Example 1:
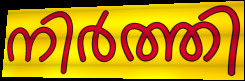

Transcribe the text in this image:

നിർത്തി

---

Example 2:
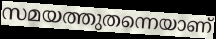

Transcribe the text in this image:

സമയത്തുതന്നെയാണ്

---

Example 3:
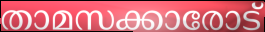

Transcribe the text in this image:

താമസക്കാരോട്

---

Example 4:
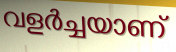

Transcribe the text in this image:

വളർച്ചയാണ്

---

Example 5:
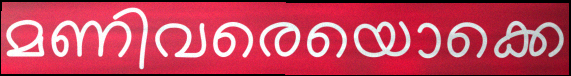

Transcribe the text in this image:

മണിവരെയൊക്കെ